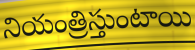
నియంత్రిస్తుంటాయి